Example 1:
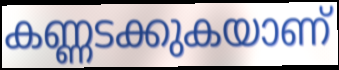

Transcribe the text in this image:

കണ്ണടക്കുകയാണ്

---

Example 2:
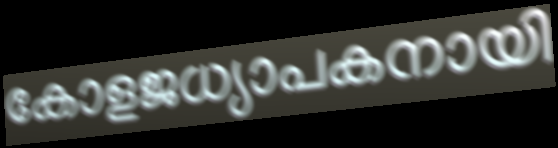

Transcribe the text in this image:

കോളജധ്യാപകനായി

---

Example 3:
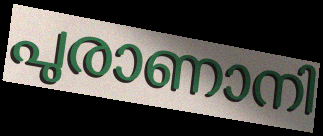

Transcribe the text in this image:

പുരാണാനി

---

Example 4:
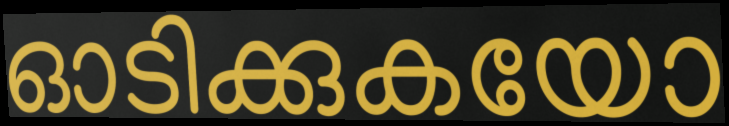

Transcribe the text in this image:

ഓടിക്കുകയോ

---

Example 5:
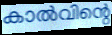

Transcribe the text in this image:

കാൽവിന്റെ